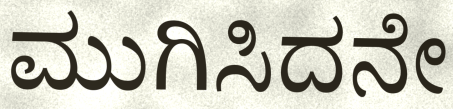
ಮುಗಿಸಿದನೇ